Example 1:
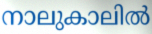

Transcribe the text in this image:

നാലുകാലിൽ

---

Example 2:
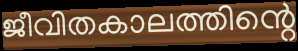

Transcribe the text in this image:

ജീവിതകാലത്തിന്റെ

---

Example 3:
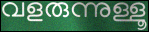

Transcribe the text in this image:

വളരുന്നുള്ളൂ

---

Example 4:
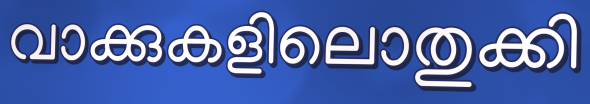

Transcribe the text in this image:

വാക്കുകളിലൊതുക്കി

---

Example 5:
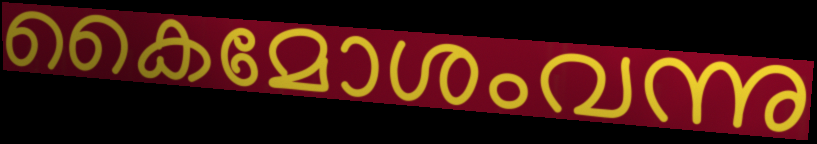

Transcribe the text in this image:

കൈമോശംവന്നു